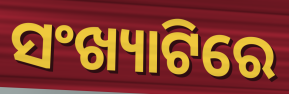
ସଂଖ୍ୟାଟିରେ